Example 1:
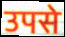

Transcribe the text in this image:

उपसे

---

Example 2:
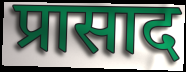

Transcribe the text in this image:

प्रासाद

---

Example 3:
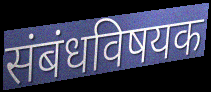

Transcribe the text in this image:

संबंधविषयक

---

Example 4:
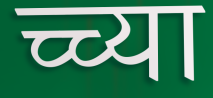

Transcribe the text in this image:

च्च्या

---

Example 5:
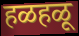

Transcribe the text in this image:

हळहळू